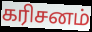
கரிசனம்